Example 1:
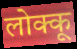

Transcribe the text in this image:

लोक्कू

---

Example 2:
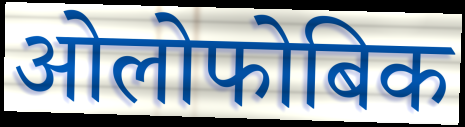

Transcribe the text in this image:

ओलोफोबिक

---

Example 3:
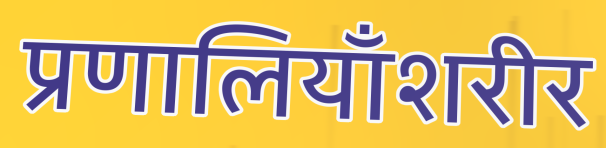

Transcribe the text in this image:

प्रणालियाँशरीर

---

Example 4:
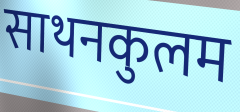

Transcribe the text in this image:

साथनकुलम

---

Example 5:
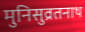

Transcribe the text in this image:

मुनिसुव्रतनाथ